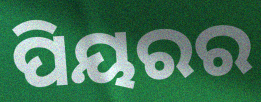
ପିୟରର